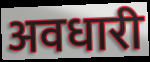
अवधारी